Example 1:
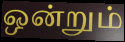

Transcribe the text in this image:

ஒன்றும்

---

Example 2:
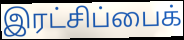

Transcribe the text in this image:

இரட்சிப்பைக்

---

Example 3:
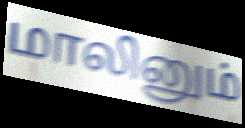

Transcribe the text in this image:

மாலினும்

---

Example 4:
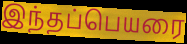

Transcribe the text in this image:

இந்தப்பெயரை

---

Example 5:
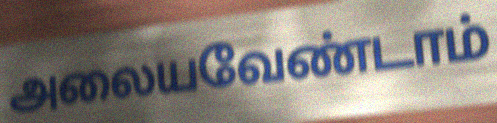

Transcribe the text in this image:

அலையவேண்டாம்